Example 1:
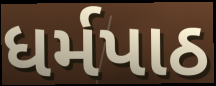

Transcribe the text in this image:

ધર્મપાઠ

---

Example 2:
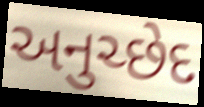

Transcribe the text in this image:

અનુચ્છેદ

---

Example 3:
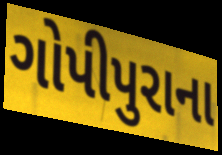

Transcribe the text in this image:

ગોપીપુરાના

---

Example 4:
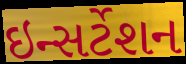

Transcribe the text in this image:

ઇન્સર્ટેશન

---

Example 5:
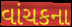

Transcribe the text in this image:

વાંચકના